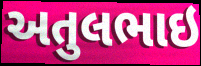
અતુલભાઇ